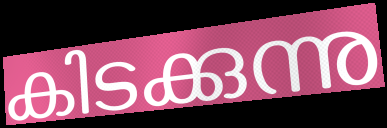
കിടക്കുന്നു